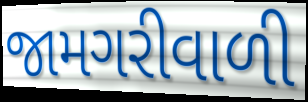
જામગરીવાળી